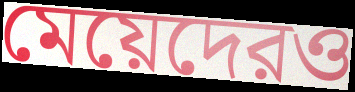
মেয়েদেরও